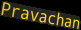
Pravachan